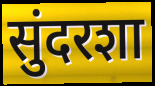
सुंदरशा